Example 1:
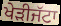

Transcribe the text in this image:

ਖੇੜੀਜੱਟਾ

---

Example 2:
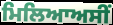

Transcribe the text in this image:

ਮਿਲਿਆਅਸੀਂ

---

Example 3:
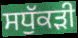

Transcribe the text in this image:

ਸਧੁੱਕੜੀ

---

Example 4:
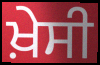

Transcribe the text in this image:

ਖ਼ੇਸੀ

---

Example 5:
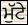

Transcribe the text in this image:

ਮੁੱਟੇ